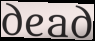
dead